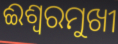
ଈଶ୍ୱରମୁଖୀ